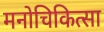
मनोचिकित्सा